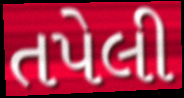
તપેલી